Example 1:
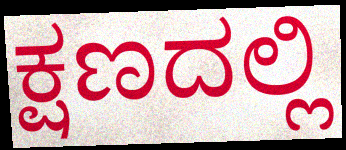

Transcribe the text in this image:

ಕ್ಷಣದಲ್ಲಿ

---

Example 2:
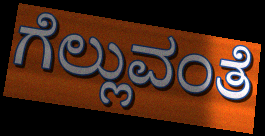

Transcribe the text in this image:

ಗೆಲ್ಲುವಂತೆ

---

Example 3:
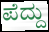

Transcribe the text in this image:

ಪೆದ್ದು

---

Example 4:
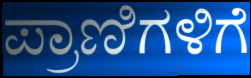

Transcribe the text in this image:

ಪ್ರಾಣಿಗಳಿಗೆ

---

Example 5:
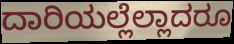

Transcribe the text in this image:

ದಾರಿಯಲ್ಲೆಲ್ಲಾದರೂ